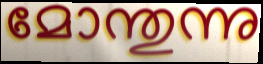
മോന്തുന്നു